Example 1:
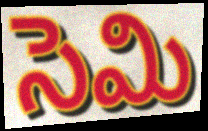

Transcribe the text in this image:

సెమి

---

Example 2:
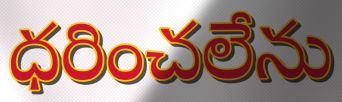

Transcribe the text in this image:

ధరించలేను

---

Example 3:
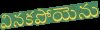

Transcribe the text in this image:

వినకపోయెను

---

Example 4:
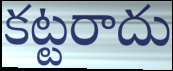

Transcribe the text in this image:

కట్టరాదు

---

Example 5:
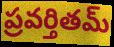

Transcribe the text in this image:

ప్రవర్తితమ్